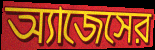
অ্যাজেসের